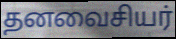
தனவைசியர்